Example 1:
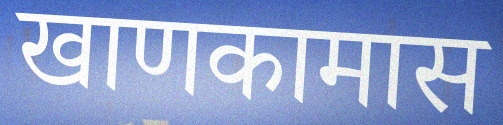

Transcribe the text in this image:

खाणकामास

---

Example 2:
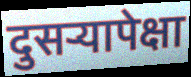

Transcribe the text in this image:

दुसऱ्यापेक्षा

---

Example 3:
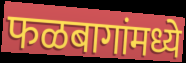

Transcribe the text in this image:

फळबागांमध्ये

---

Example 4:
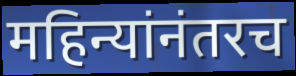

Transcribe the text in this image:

महिन्यांनंतरच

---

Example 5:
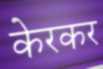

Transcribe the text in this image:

केरकर